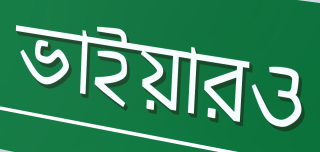
ভাইয়ারও